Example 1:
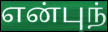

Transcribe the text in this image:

என்புந்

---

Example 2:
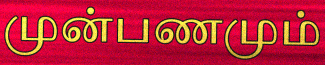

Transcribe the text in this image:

முன்பணமும்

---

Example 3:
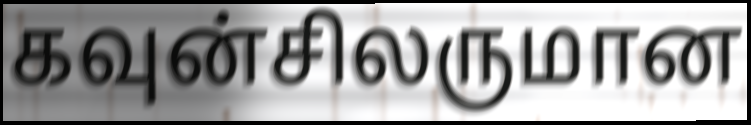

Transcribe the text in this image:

கவுன்சிலருமான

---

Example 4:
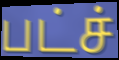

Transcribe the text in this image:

பட்ச்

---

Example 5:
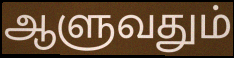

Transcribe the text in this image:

ஆளுவதும்